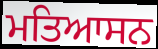
ਮਤਿਆਸਨ